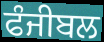
ਫੰਜੀਬਲ